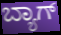
ಬ್ಯಾಗ್